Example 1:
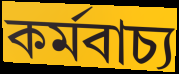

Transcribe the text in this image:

কৰ্মবাচ্য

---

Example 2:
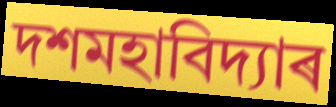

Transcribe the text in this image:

দশমহাবিদ্যাৰ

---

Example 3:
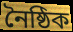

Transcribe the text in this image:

নৈষ্ঠিক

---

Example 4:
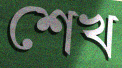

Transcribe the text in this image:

শেখ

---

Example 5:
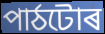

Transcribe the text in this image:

পাঠটোৰ